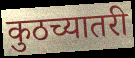
कुठच्यातरी